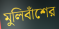
মুলিবাঁশের